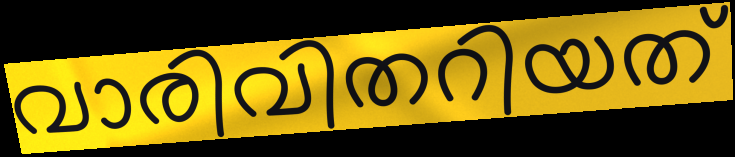
വാരിവിതറിയത്